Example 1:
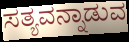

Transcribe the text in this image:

ಸತ್ಯವನ್ನಾಡುವ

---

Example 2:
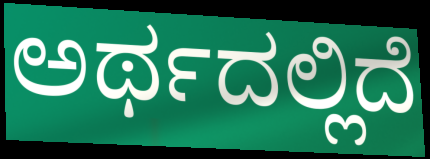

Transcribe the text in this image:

ಅರ್ಥದಲ್ಲಿದೆ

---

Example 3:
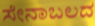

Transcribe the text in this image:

ಸೇನಾಬಲದ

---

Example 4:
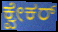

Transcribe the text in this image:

ಕ್ವೇಕರ್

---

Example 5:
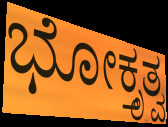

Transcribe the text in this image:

ಭೋಕ್ತೃತ್ವ